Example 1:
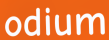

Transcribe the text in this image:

odium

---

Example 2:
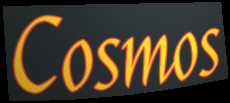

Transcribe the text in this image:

Cosmos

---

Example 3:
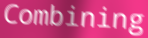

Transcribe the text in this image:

Combining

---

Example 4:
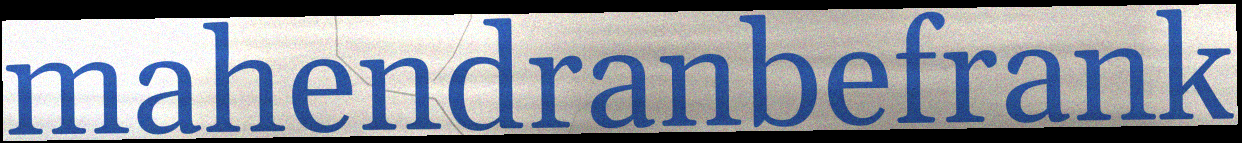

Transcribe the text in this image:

mahendranbefrank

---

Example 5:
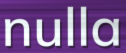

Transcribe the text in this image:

nulla